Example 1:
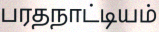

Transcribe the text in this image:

பரதநாட்டியம்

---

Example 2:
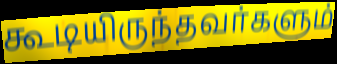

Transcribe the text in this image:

கூடியிருந்தவர்களும்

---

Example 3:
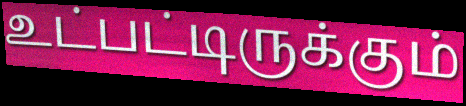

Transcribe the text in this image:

உட்பட்டிருக்கும்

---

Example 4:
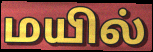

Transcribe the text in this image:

மயில்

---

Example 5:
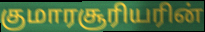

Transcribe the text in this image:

குமாரசூரியரின்